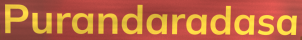
Purandaradasa